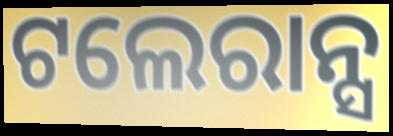
ଟଲେରାନ୍ସ